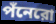
পঁনেরো